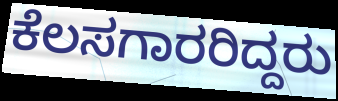
ಕೆಲಸಗಾರರಿದ್ದರು